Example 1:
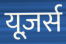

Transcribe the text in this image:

यूज़र्स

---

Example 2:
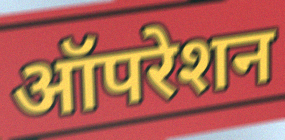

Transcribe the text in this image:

ऑपरेशन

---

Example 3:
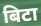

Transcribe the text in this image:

बिटा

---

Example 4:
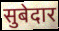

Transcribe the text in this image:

सुबेदार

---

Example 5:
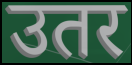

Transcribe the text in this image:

उतर